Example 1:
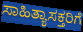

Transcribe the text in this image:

ಸಾಹಿತ್ಯಾಸಕ್ತರಿಗೆ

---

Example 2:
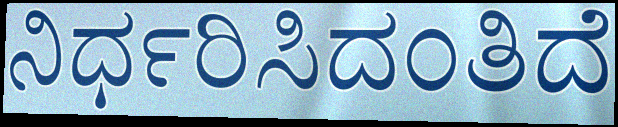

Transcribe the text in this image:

ನಿರ್ಧರಿಸಿದಂತಿದೆ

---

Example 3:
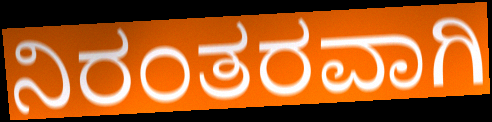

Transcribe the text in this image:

ನಿರಂತರವಾಗಿ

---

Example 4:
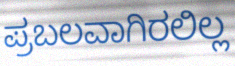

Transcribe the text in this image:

ಪ್ರಬಲವಾಗಿರಲಿಲ್ಲ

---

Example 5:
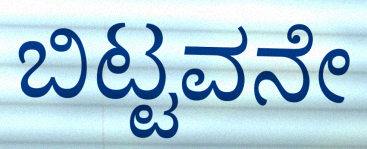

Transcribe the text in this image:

ಬಿಟ್ಟವನೇ